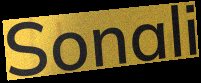
Sonali